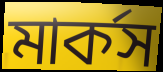
মার্কস